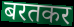
बरतकर